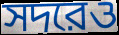
সদরেও